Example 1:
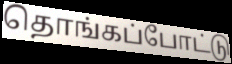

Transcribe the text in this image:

தொங்கப்போட்டு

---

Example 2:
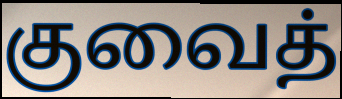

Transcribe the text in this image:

குவைத்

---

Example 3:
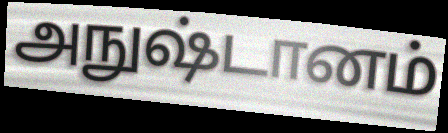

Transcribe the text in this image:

அநுஷ்டானம்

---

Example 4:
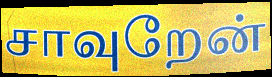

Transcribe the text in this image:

சாவுறேன்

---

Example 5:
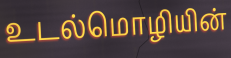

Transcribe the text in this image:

உடல்மொழியின்